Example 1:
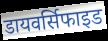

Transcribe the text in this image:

डायवर्सिफाइड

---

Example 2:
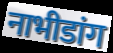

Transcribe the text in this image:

नाभीडांग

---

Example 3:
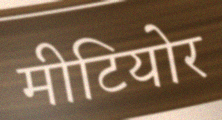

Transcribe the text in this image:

मीटियोर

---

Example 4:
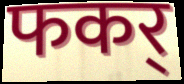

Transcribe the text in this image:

फकर्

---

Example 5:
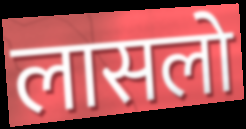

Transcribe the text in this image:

लासलो